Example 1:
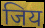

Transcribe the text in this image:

जिय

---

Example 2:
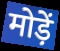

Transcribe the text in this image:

मोड़ें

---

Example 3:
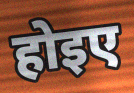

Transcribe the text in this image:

होइए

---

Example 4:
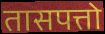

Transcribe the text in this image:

तासपत्तो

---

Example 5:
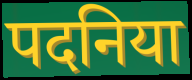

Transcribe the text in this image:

पदनिया